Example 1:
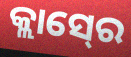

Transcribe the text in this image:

କ୍ଲାସ୍‍ରେ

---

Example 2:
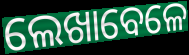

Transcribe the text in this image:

ଲେଖାବେଳେ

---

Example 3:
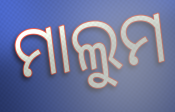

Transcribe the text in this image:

ମାଲୁମ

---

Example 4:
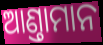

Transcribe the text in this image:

ଆଣ୍ତାମାନ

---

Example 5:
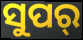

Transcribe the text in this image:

ସୁପର୍